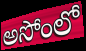
అసోంలో